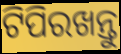
ଟିପିରଖନ୍ତୁ